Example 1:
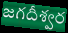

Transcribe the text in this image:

జగదీశ్వర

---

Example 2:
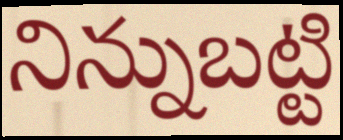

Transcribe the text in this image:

నిన్నుబట్టి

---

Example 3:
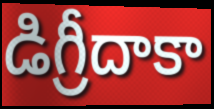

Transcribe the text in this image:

డిగ్రీదాకా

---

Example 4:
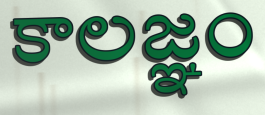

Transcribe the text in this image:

కాలజ్ఞం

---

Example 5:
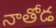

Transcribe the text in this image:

నాతోడ